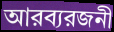
আরব্যরজনী